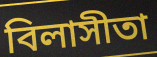
বিলাসীতা